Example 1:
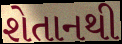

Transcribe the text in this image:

શેતાનથી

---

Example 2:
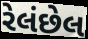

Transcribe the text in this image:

રેલંછેલ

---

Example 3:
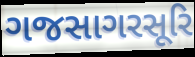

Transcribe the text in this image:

ગજસાગરસૂરિ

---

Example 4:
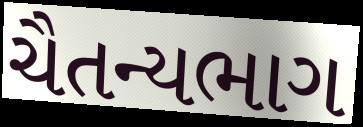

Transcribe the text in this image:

ચૈતન્યભાગ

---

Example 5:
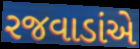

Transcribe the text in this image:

રજવાડાંએ